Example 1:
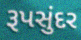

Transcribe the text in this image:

રૂપસુંદર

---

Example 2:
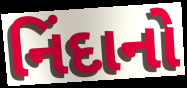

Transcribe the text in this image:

નિંદાનો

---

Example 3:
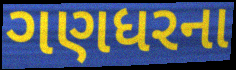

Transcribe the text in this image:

ગણધરના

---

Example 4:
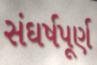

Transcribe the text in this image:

સંઘર્ષપૂર્ણ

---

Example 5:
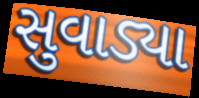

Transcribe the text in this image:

સુવાડ્યા